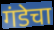
गंडेचा